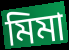
মিমা